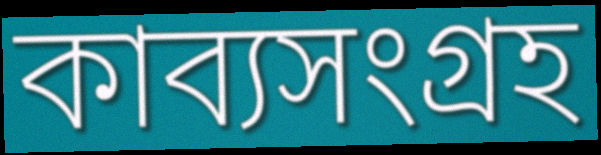
কাব্যসংগ্রহ